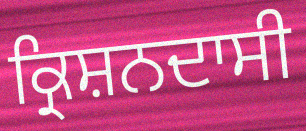
ਕ੍ਰਿਸ਼ਨਦਾਸੀ